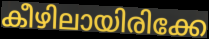
കീഴിലായിരിക്കേ